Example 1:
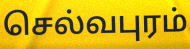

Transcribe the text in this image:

செல்வபுரம்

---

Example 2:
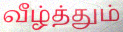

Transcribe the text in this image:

வீழ்த்தும்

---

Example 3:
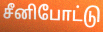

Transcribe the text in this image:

சீனிபோட்டு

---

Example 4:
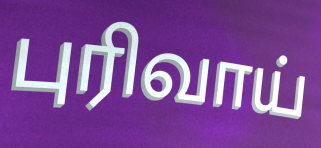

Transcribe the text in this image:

புரிவாய்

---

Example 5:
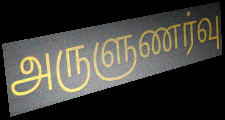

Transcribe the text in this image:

அருளுணர்வு